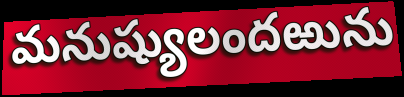
మనుష్యులందఱును